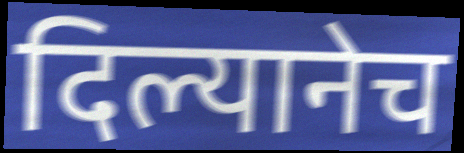
दिल्यानेच